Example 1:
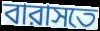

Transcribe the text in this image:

বারাসতে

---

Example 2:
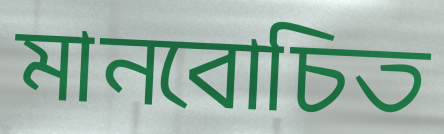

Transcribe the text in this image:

মানবোচিত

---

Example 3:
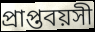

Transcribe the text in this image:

প্রাপ্তবয়সী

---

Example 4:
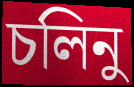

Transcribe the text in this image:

চলিনু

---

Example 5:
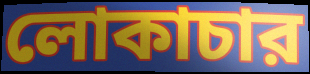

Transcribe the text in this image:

লোকাচার